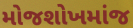
મોજશોખમાંજ